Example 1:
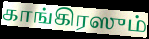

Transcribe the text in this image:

காங்கிரஸும்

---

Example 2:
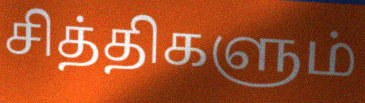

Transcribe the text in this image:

சித்திகளும்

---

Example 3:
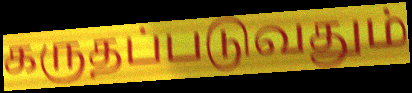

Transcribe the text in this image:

கருதப்படுவதும்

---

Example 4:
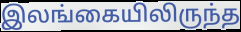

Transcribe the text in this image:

இலங்கையிலிருந்த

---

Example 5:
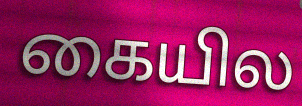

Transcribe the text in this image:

கையில